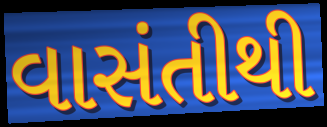
વાસંતીથી